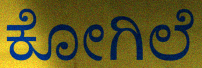
ಕೋಗಿಲೆ